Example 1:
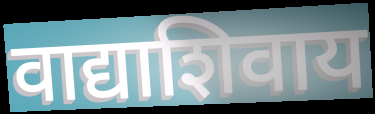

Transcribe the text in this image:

वाद्याशिवाय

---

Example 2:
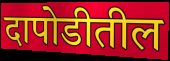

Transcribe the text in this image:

दापोडीतील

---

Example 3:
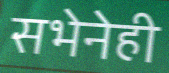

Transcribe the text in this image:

सभेनेही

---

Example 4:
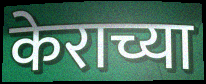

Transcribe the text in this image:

केराच्या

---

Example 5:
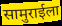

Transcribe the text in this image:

सामुराईला